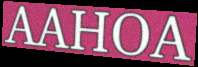
AAHOA